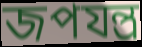
জপযন্ত্র